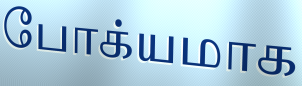
போக்யமாக